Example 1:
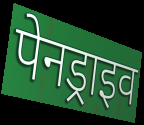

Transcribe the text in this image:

पेनड्राइव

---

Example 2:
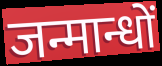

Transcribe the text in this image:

जन्मान्धों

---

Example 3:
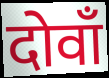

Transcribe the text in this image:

दोवाँ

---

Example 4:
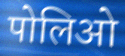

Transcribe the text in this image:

पोलिओ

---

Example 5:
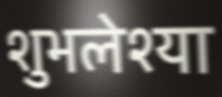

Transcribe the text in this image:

शुभलेश्या